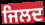
ਜਿਲਦ